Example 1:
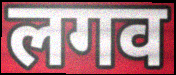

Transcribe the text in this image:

लगव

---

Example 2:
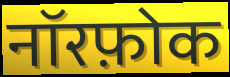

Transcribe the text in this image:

नॉरफ़ोक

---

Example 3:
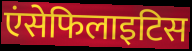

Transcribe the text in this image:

एंसेफिलाइटिस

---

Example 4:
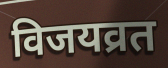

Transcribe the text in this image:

विजयव्रत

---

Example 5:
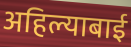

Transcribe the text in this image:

अहिल्याबाई